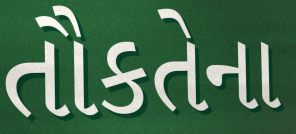
તૌકતેના